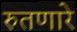
रुतणारे